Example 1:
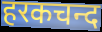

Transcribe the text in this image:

हरकचन्द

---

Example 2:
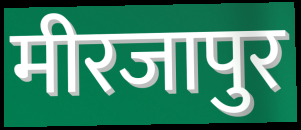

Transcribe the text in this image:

मीरजापुर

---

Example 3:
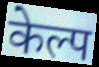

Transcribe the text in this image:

केल्प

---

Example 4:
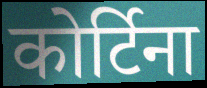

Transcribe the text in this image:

कोर्टिना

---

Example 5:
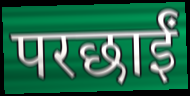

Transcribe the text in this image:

परछाईं